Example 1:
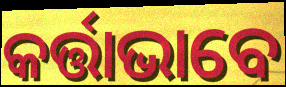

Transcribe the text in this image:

କର୍ତ୍ତାଭାବେ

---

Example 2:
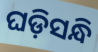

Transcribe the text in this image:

ଘଡ଼ିସନ୍ଧି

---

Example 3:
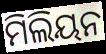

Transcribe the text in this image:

ମିଲିୟନ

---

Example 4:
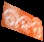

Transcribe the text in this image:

ରହନ୍ତି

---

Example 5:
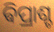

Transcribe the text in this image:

ଵିପ୍ରାଶ୍ଚ